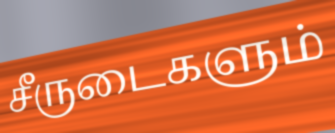
சீருடைகளும்